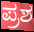
ಪ್ರಶ